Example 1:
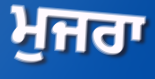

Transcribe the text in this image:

ਮੁਜਰਾ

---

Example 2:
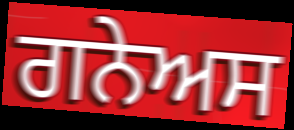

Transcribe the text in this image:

ਗਨੇਅਸ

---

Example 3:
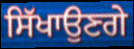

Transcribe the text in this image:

ਸਿੱਖਾਉਣਗੇ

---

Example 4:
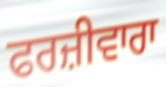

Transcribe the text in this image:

ਫਰਜ਼ੀਵਾਰਾ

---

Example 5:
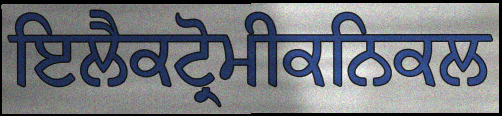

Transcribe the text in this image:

ਇਲੈਕਟ੍ਰੋਮੀਕਨਿਕਲ